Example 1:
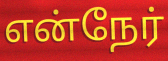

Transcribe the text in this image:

என்நேர்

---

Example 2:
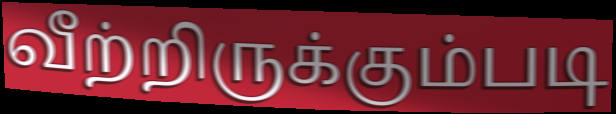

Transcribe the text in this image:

வீற்றிருக்கும்படி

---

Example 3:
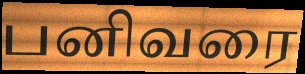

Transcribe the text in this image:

பனிவரை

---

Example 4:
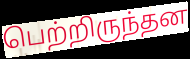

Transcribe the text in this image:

பெற்றிருந்தன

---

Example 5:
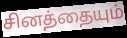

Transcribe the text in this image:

சினத்தையும்